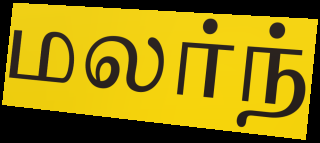
மலர்ந்